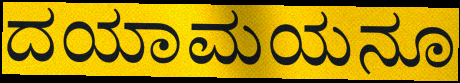
ದಯಾಮಯನೂ